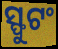
ସ୍ଫୁଟଂ